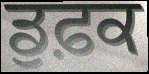
ਡੁਫ਼ਕ